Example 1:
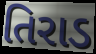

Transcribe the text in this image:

તિરાડ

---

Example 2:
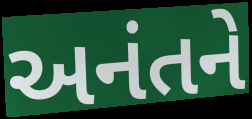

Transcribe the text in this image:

અનંતને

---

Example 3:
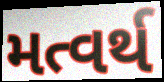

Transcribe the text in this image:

મત્વર્થ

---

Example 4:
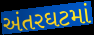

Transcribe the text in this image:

અંતરઘટમાં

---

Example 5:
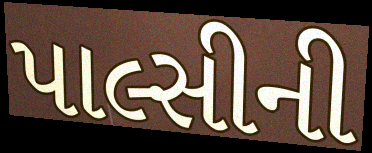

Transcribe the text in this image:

પાલ્સીની